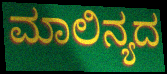
ಮಾಲಿನ್ಯದ